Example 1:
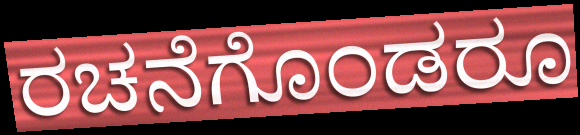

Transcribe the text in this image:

ರಚನೆಗೊಂಡರೂ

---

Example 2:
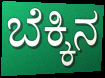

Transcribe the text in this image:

ಬೆಕ್ಕಿನ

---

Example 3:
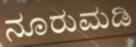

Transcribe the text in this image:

ನೂರುಮಡಿ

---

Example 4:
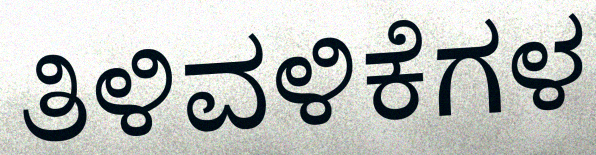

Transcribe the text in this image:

ತಿಳಿವಳಿಕೆಗಳ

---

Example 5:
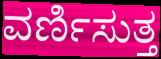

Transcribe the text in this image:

ವರ್ಣಿಸುತ್ತ